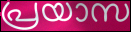
പ്രയാസ